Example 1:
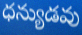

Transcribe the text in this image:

ధన్యుడవు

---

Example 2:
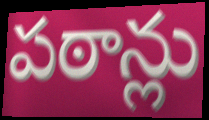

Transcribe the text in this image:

పఠాన్లు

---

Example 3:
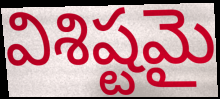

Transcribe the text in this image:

విశిష్టమై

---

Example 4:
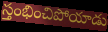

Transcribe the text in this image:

స్తంభించిపోయాడు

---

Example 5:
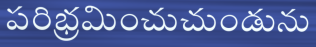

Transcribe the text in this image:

పరిభ్రమించుచుండును